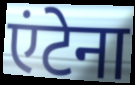
एंटेना